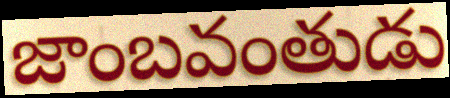
జాంబవంతుడు